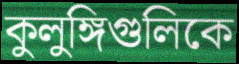
কুলুঙ্গিগুলিকে